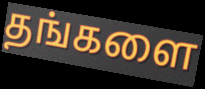
தங்களை